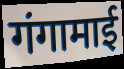
गंगामाई